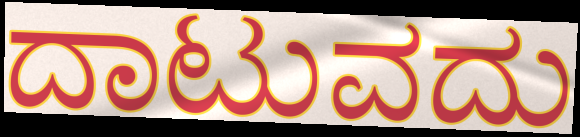
ದಾಟುವದು